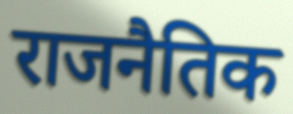
राजनैतिक